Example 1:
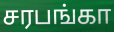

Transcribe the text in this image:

சரபங்கா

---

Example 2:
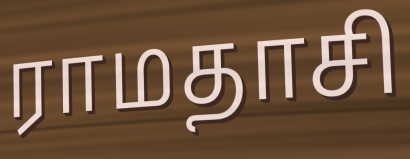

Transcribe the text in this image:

ராமதாசி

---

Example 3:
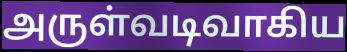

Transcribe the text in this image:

அருள்வடிவாகிய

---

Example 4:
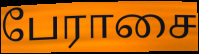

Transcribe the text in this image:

பேராசை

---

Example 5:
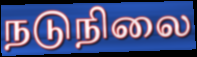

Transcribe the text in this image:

நடுநிலை